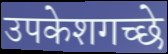
उपकेशगच्छे